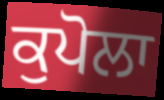
ਕੁਪੋਲਾ